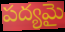
పద్యమై